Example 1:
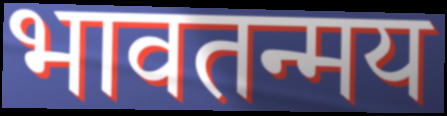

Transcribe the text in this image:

भावतन्मय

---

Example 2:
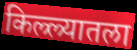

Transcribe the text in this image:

किल्ल्यातला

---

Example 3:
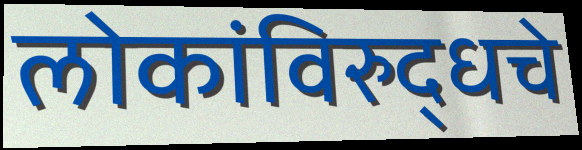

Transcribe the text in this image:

लोकांविरुद्धचे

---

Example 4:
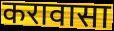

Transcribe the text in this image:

करावासा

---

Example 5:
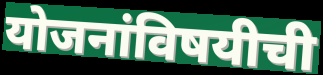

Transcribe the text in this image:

योजनांविषयीची